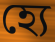
হ্যে